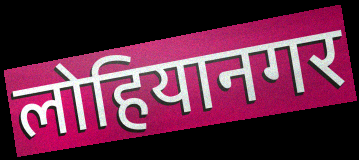
लोहियानगर